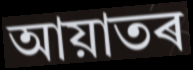
আয়াতৰ